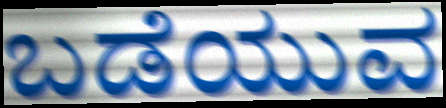
ಬಡೆಯುವ